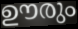
ഊരും